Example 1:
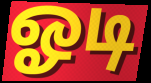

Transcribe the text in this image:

ஓடி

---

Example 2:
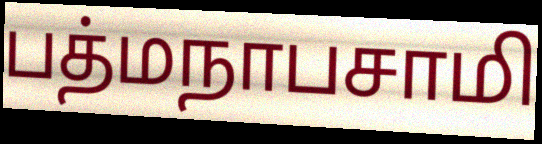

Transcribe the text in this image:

பத்மநாபசாமி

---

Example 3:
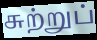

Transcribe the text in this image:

சுற்றுப்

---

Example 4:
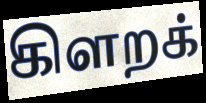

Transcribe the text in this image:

கிளறக்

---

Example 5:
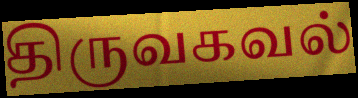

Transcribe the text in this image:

திருவகவல்